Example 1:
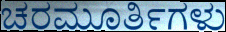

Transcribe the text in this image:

ಚರಮೂರ್ತಿಗಳು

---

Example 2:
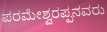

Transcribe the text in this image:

ಪರಮೇಶ್ವರಪ್ಪನವರು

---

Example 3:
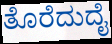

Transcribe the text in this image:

ತೊರೆದುದೈ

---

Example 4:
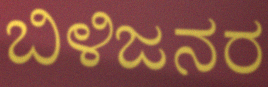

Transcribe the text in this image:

ಬಿಳಿಜನರ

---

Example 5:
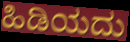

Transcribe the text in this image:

ಹಿಡಿಯದು